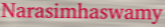
Narasimhaswamy